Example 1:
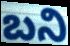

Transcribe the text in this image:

బని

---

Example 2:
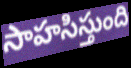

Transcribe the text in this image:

సాహసిస్తుంది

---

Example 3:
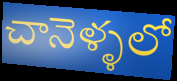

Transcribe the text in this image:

చానెళ్ళలో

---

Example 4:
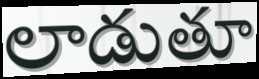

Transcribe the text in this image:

లాడుతూ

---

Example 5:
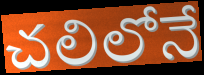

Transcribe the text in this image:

చలిలోనే